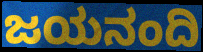
ಜಯನಂದಿ